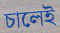
চালেই